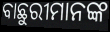
ବାଛୁରୀମାନଙ୍କ